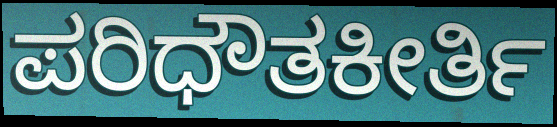
ಪರಿಧೌತಕೀರ್ತಿ